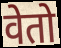
वेतो